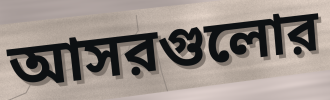
আসরগুলোর